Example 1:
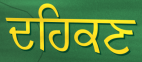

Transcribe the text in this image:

ਦਹਿਕਣ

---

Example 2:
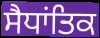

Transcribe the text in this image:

ਸੈਧਾਂਤਿਕ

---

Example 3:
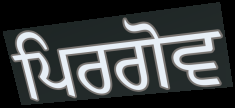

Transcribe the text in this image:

ਪਿਰਗੋਵ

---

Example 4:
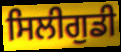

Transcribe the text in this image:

ਸਿਲੀਗੁਡੀ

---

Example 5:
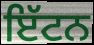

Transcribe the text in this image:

ਇੱਟਨ